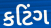
કટિંગ